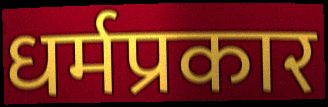
धर्मप्रकार